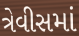
ત્રેવીસમાં